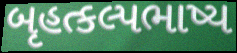
બૃહત્કલ્પભાષ્ય